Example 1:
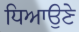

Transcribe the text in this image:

ਧਿਆਉਣੇ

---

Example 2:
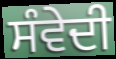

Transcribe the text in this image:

ਸੰਵੇਦੀ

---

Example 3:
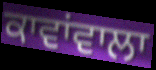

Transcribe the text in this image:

ਕਾਵਾਂਵਾਲਾ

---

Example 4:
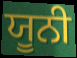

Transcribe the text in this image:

ਯੂਨੀ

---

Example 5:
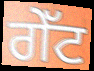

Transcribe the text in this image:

ਗੇੱਟ